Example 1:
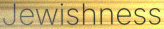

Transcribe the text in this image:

Jewishness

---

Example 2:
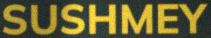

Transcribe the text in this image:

SUSHMEY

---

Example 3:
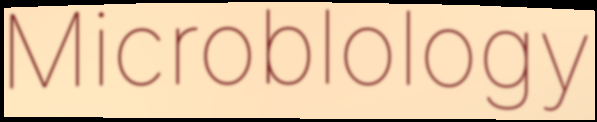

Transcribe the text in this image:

Microblology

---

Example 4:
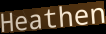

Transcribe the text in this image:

Heathen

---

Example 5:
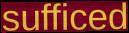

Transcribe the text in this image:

sufficed